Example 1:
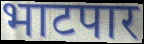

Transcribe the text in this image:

भाटपार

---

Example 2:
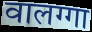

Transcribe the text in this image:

वालग्गा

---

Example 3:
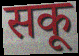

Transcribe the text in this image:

सकू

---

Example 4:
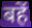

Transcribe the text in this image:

बहें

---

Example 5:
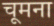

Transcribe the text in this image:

चूमना